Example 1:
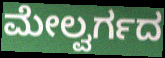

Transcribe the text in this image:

ಮೇಲ್ವರ್ಗದ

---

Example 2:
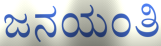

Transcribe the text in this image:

ಜನಯಂತಿ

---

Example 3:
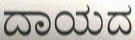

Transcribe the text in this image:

ದಾಯದ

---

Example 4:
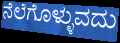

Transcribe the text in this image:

ನೆಲೆಗೊಳ್ಳುವದು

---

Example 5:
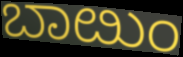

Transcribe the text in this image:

ಬಾೞುಂ